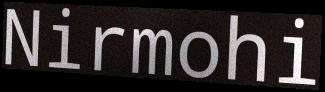
Nirmohi